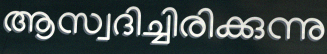
ആസ്വദിച്ചിരിക്കുന്നു